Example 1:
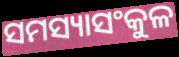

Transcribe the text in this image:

ସମସ୍ୟାସଂକୁଳ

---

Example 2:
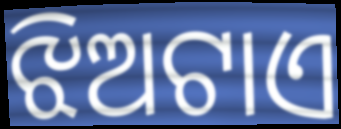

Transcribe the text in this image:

ଝିଅଟାଏ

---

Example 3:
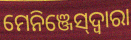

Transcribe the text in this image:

ମେନିଞ୍ଜେସ୍‌ଦ୍ୱାରା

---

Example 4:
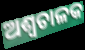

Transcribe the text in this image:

ଅଶ୍ୱଚାଳକ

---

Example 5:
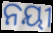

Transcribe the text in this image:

ନୟୀ